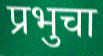
प्रभुचा